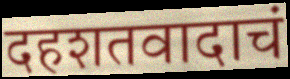
दहशतवादाचं